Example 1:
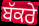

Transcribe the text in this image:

ਬੱਕਰੇ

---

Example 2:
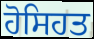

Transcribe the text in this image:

ਹੋਸਿਹਤ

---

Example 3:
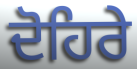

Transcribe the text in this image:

ਦੋਹਿਰੇ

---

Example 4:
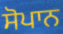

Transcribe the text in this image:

ਸੋਪਾਨ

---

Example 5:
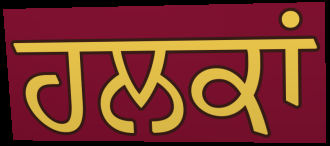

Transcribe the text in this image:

ਹਲਕਾਂ